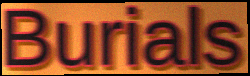
Burials